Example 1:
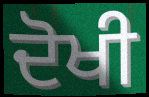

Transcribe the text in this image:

ਦੋਖੀ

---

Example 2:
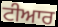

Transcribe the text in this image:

ਟੀਆਰ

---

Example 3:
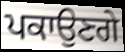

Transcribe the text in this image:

ਪਕਾਉਣਗੇ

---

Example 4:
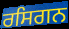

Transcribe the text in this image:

ਰਸਿਗਨ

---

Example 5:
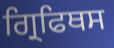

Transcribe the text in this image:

ਗ੍ਰਿਫਿਥਸ